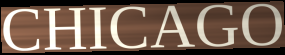
CHICAGO